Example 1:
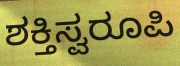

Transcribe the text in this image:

ಶಕ್ತಿಸ್ವರೂಪಿ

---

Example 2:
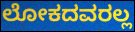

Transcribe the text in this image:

ಲೋಕದವರಲ್ಲ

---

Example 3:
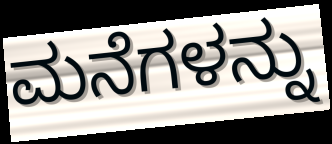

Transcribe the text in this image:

ಮನೆಗಳನ್ನು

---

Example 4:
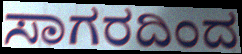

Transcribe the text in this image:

ಸಾಗರದಿಂದ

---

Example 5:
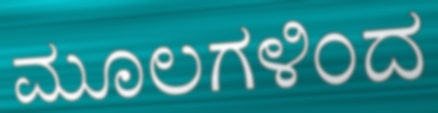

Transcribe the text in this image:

ಮೂಲಗಳಿಂದ